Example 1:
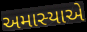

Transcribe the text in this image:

અમાસ્યાએ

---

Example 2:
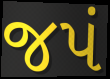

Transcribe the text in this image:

જપં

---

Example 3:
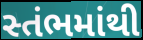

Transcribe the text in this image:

સ્તંભમાંથી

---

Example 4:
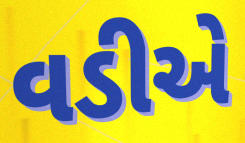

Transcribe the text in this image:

વડીએ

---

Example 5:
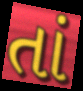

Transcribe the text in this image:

તાં